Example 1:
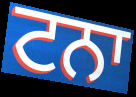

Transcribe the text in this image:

ਟਨਾ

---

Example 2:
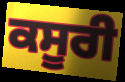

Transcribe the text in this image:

ਕਸੂਰੀ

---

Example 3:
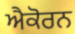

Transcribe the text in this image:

ਐਕੋਰਨ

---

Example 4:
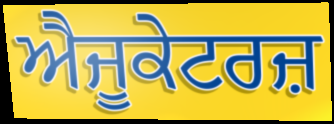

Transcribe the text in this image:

ਐਜੂਕੇਟਰਜ਼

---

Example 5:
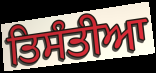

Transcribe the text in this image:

ਤਿਸੰਤੀਆ